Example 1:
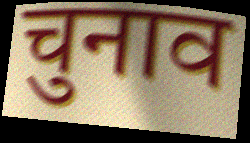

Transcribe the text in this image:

चुनाव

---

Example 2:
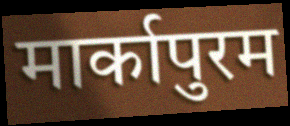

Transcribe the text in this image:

मार्कापुरम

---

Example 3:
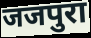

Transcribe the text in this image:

जजपुरा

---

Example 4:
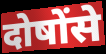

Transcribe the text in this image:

दोषोंसे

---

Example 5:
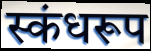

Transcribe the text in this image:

स्कंधरूप